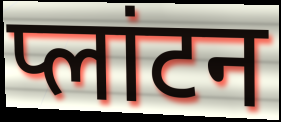
प्लांटन